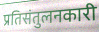
प्रतिसंतुलनकारी